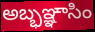
అబ్భఞ్ఞాసిం